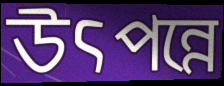
উৎপন্নে